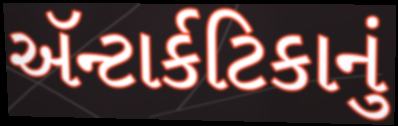
ઍન્ટાર્કટિકાનું